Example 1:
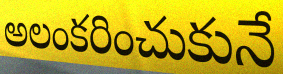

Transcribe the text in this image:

అలంకరించుకునే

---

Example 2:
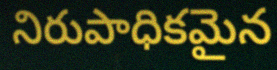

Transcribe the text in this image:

నిరుపాధికమైన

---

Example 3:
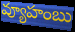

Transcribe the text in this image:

వ్యూహంబు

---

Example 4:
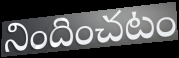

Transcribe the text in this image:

నిందించటం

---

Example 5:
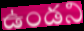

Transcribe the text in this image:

ఉండని